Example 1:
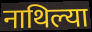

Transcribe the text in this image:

नाथिल्या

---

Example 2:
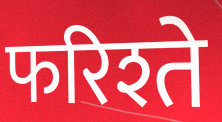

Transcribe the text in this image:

फरिश्ते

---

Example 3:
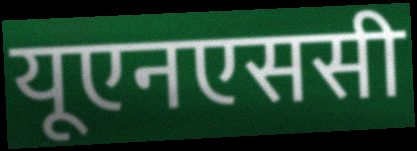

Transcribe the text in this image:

यूएनएससी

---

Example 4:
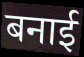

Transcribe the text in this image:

बनाई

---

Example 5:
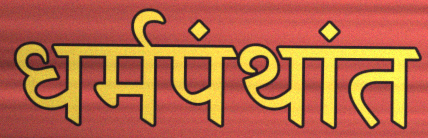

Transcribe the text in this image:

धर्मपंथांत